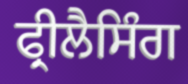
ਫ੍ਰੀਲੈਸਿੰਗ